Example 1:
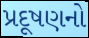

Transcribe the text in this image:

પ્રદૂષણનો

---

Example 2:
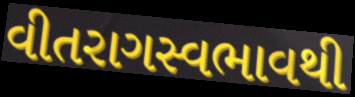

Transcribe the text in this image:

વીતરાગસ્વભાવથી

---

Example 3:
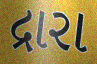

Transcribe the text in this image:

દ્રારા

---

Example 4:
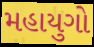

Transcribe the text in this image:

મહાયુગો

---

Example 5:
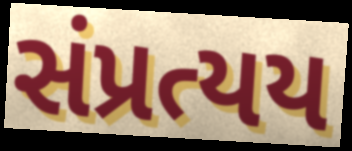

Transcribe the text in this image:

સંપ્રત્યય